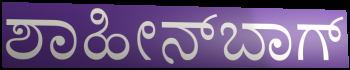
ಶಾಹೀನ್‌ಬಾಗ್